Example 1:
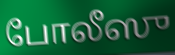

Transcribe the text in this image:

போலீஸு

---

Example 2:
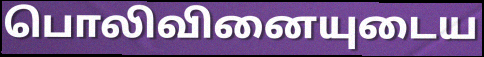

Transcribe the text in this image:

பொலிவினையுடைய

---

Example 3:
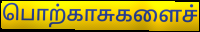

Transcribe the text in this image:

பொற்காசுகளைச்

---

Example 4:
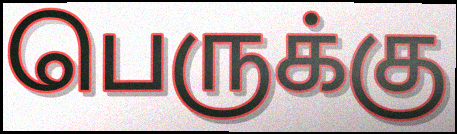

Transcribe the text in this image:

பெருக்கு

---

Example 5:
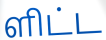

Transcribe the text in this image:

ளிட்ட